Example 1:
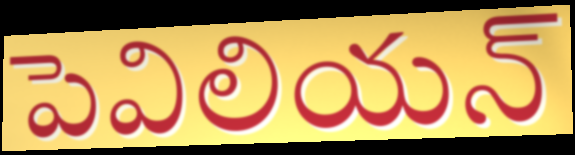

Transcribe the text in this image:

పెవిలియన్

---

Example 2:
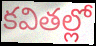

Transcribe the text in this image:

కవితల్లో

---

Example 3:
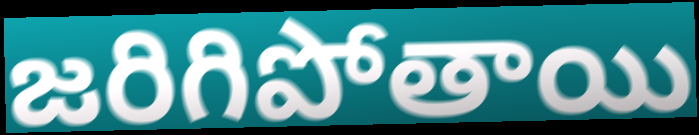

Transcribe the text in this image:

జరిగిపోతాయి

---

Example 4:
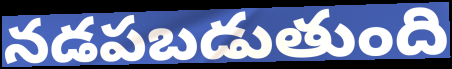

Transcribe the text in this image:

నడపబడుతుంది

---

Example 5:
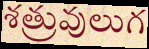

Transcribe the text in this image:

శత్రువులుగ